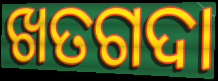
ଖତଗଦା